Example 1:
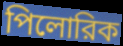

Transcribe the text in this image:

পিলোরিক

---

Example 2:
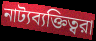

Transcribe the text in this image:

নাট্যব্যক্তিত্বরা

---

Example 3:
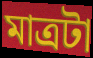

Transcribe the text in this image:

মাত্রটা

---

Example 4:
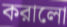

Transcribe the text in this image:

করালো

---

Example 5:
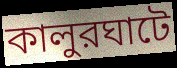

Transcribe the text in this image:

কালুরঘাটে